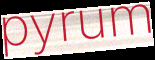
pyrum